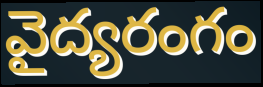
వైద్యరంగం